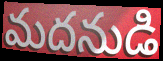
మదనుడి